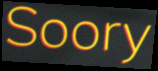
Soory